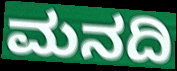
ಮನದಿ